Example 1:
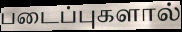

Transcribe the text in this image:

படைப்புகளால்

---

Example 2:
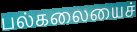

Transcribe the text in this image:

பல்கலையைச்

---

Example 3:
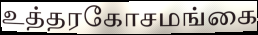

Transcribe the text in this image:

உத்தரகோசமங்கை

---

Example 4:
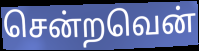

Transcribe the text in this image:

சென்றவென்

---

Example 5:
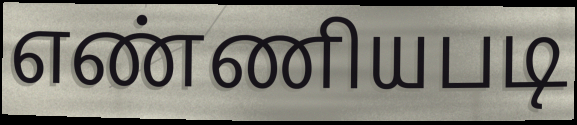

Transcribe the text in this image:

எண்ணியபடி